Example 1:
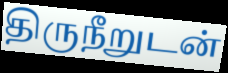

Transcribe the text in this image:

திருநீறுடன்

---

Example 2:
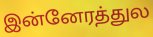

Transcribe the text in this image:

இன்னேரத்துல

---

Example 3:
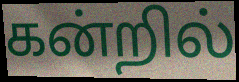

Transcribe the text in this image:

கன்றில்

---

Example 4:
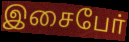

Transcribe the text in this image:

இசைபேர்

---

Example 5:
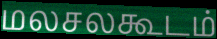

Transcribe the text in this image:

மலசலகூடம்